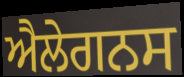
ਐਲੇਗਨਸ